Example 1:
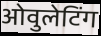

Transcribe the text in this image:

ओवुलेटिंग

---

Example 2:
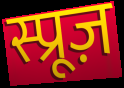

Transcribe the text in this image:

स्प्रूज़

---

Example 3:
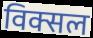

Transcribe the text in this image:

विक्सल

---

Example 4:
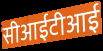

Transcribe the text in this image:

सीआईटीआई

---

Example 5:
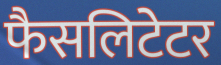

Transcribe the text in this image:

फैसलिटेटर